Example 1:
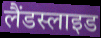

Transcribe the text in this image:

लैंडस्लाइड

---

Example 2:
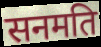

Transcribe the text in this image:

सनमति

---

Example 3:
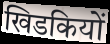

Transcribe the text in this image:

खिडकियों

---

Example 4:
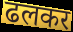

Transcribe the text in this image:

ढलकर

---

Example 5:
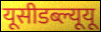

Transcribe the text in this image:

यूसीडब्ल्यूयू